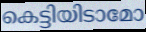
കെട്ടിയിടാമോ